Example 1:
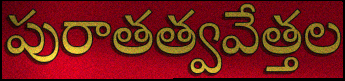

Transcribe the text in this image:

పురాతత్వవేత్తల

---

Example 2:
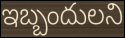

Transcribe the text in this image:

ఇబ్బందులని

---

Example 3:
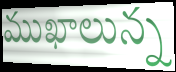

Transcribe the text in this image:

ముఖాలున్న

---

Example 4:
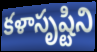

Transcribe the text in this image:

కళాసృష్టిని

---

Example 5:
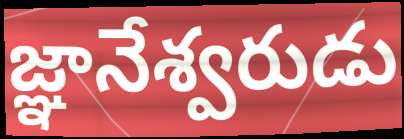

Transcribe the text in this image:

జ్ఞానేశ్వరుడు